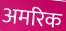
अमरिक